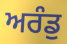
ਅਰੰਡੁ